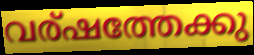
വര്ഷത്തേക്കു